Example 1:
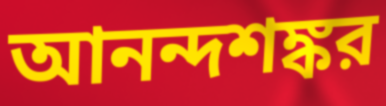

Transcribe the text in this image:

আনন্দশঙ্কর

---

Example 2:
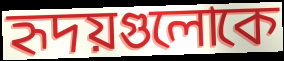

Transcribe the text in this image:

হৃদয়গুলোকে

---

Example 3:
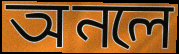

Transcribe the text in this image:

অনলে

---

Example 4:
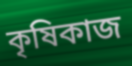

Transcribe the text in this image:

কৃষিকাজ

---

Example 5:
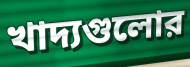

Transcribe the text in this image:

খাদ্যগুলোর